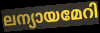
ലന്യായമേറി